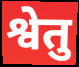
श्वेतु